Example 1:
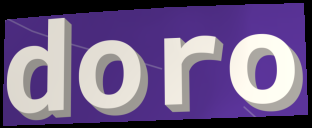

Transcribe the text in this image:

doro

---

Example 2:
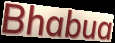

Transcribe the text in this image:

Bhabua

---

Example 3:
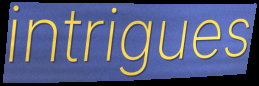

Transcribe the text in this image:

intrigues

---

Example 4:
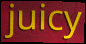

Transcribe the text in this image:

juicy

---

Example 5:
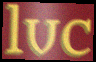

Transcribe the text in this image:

luc